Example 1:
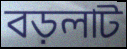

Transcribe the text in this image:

বড়লাট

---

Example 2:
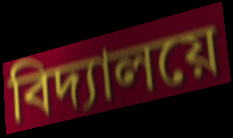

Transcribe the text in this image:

বিদ্যালয়ে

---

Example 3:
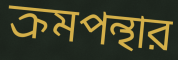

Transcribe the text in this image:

ক্রমপন্থার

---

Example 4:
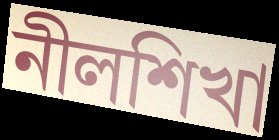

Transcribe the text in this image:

নীলশিখা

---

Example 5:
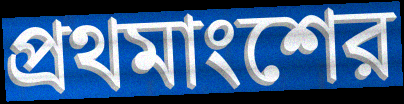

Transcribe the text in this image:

প্রথমাংশের